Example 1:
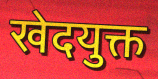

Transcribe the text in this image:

खेदयुक्त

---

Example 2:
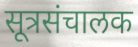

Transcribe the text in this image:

सूत्रसंचालक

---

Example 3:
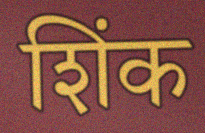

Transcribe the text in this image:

शिंक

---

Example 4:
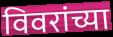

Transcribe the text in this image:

विवरांच्या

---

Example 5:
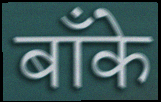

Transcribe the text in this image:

बाँके